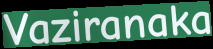
Vaziranaka